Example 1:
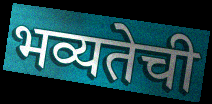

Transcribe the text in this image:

भव्यतेची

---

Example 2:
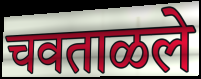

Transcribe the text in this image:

चवताळले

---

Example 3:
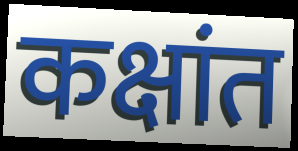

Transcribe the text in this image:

कक्षांत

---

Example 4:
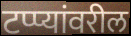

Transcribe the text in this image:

टप्प्यांवरील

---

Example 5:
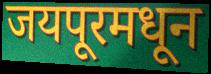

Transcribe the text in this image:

जयपूरमधून